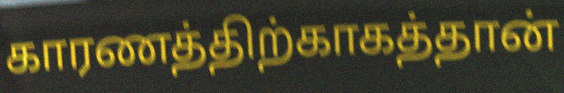
காரணத்திற்காகத்தான்